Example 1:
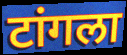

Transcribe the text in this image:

टांगला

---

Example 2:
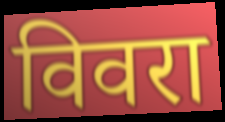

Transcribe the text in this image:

विवरा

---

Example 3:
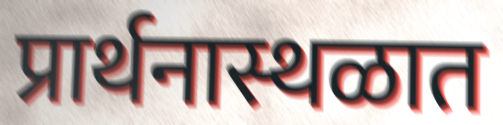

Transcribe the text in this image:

प्रार्थनास्थळात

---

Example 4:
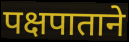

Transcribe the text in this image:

पक्षपाताने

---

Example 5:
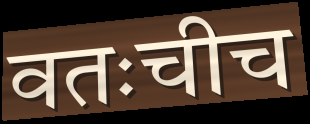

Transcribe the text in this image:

वतःचीच